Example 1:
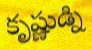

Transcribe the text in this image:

కృష్ణుడ్ని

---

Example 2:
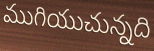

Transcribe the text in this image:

ముగియుచున్నది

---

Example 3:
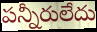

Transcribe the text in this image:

పన్నీరులేదు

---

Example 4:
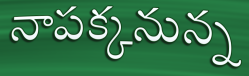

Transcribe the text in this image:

నాపక్కనున్న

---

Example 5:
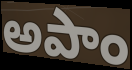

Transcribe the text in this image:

అపాం